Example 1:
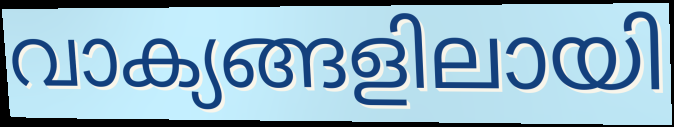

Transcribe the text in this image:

വാക്യങ്ങളിലായി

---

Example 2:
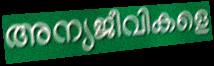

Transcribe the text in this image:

അന്യജീവികളെ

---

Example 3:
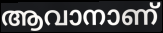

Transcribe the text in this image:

ആവാനാണ്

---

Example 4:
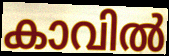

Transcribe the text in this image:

കാവിൽ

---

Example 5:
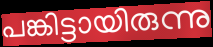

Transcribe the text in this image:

പങ്കിട്ടായിരുന്നു